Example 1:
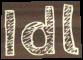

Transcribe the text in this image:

Idl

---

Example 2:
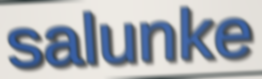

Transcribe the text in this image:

salunke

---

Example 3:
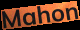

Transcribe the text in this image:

Mahon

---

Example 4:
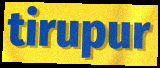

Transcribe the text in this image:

tirupur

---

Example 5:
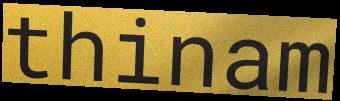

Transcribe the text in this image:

thinam